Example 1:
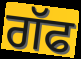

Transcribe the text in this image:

ਗੱਫ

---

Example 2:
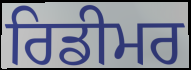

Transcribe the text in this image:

ਰਿਡੀਮਰ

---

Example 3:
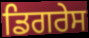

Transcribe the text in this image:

ਡਿਗਰੇਸ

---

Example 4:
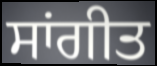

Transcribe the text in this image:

ਸਾਂਗੀਤ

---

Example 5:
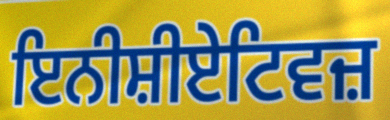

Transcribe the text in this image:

ਇਨੀਸ਼ੀਏਟਿਵਜ਼